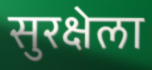
सुरक्षेला